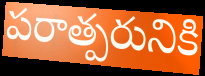
పరాత్పరునికి